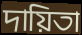
দায়িতা